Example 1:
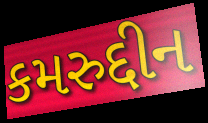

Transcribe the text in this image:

કમરુદ્દીન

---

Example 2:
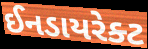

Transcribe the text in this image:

ઈનડાયરેક્ટ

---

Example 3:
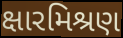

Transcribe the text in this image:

ક્ષારમિશ્રણ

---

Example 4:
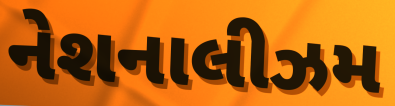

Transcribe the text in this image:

નેશનાલીઝમ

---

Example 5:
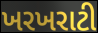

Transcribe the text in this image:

ખરખરાટી